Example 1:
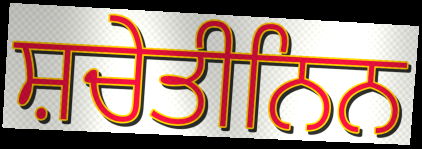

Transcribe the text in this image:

ਸ਼ਚੇਤੀਨਿਨ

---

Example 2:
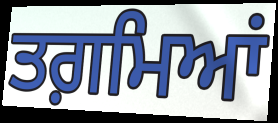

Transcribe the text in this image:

ਤਗ਼ਮਿਆਂ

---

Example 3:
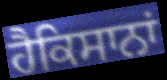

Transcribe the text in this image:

ਹੈਕਿਸਾਨਾਂ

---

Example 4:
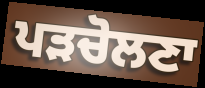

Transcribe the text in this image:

ਪੜਚੋਲਣਾ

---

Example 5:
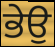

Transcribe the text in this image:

ਭੇਉ